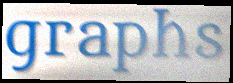
graphs